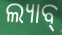
ଲ୍ୟାବ୍